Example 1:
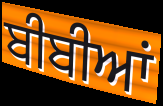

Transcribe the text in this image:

ਬੀਬੀਆਂ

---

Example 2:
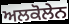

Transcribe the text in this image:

ਅਲਕੋਲੇਨ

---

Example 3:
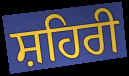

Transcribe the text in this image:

ਸ਼ਹਿਰੀ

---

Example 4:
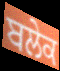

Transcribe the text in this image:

ਬਲੇਕ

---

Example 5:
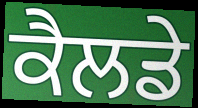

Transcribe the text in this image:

ਕੈਲਡੇ